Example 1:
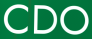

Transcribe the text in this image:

CDO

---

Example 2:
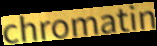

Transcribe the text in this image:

chromatin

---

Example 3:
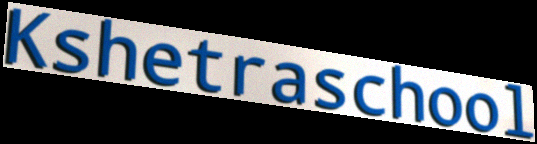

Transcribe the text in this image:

Kshetraschool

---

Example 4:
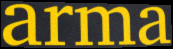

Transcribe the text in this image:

arma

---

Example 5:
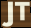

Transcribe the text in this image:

JT